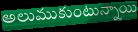
అలుముకుంటున్నాయి